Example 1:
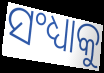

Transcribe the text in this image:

ସଂଧ୍ୟାକୁ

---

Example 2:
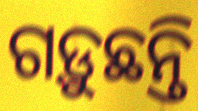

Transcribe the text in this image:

ଗଡ଼ୁଛନ୍ତି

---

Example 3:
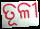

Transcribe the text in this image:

ତୂଳୀ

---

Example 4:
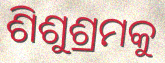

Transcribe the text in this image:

ଶିଶୁଶ୍ରମକୁ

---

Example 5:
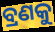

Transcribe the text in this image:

ବ୍ରଣକୁ